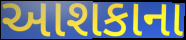
આશકાના